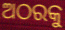
ଅଠରକୁ